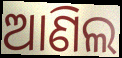
ଆଣିଲ